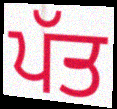
ਪੱਤ